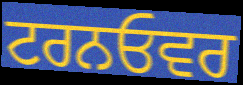
ਟਰਨਓਵਰ